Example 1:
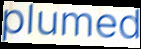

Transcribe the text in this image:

plumed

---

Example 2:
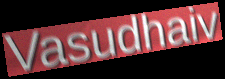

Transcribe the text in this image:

Vasudhaiv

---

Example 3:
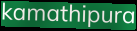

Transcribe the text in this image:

kamathipura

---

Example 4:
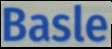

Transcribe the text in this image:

Basle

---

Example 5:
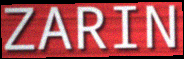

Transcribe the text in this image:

ZARIN